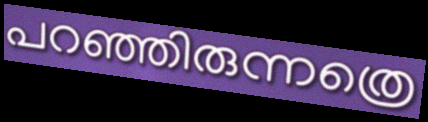
പറഞ്ഞിരുന്നത്രെ